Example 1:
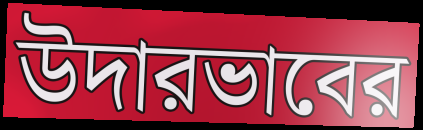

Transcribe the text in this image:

উদারভাবের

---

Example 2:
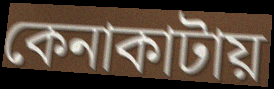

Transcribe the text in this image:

কেনাকাটায়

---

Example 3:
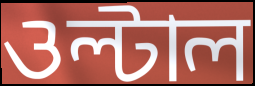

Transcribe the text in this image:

ওল্টাল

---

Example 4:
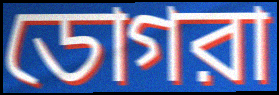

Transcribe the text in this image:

ডোগরা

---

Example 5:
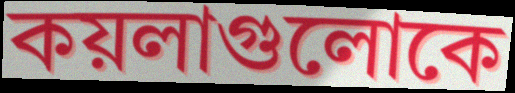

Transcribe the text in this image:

কয়লাগুলোকে